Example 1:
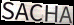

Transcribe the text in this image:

SACHA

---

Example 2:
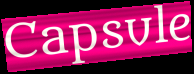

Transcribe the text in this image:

Capsule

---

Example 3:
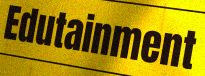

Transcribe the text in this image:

Edutainment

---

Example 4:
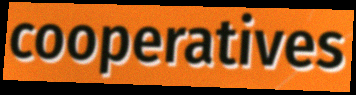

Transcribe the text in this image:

cooperatives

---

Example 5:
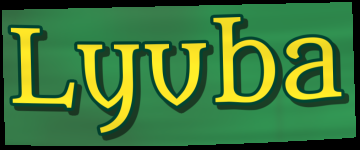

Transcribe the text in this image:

Lyuba